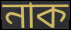
নাক